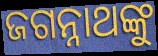
ଜଗନ୍ନାଥଙ୍କୁ